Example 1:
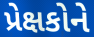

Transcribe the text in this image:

પ્રેક્ષકોને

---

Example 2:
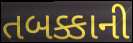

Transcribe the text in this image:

તબક્કાની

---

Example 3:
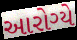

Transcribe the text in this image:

આરોગ્યે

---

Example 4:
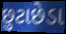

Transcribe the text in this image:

છુટાછેડા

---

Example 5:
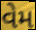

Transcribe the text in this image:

વેમ